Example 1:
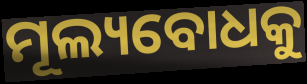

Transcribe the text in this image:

ମୂଲ୍ୟବୋଧକୁ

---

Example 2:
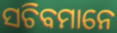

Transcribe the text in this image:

ସଚିବମାନେ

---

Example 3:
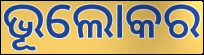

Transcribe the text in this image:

ଭୂଲୋକର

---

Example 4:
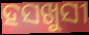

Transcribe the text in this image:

ହସଖୁସୀ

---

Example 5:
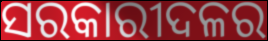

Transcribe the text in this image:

ସରକାରୀଦଳର